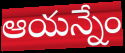
ఆయన్నేం